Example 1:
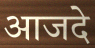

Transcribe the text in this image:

आजदे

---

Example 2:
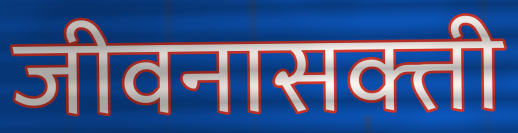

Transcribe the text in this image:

जीवनासक्ती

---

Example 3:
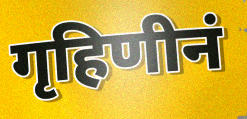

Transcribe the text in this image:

गृहिणीनं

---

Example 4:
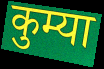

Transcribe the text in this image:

कुम्या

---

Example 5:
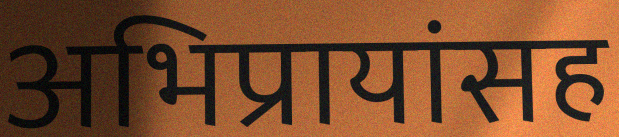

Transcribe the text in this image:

अभिप्रायांसह